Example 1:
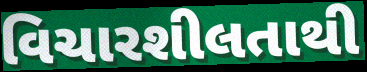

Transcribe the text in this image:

વિચારશીલતાથી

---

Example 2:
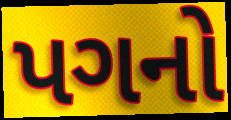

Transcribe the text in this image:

પગનો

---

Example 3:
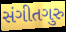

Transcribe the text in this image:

સંગીતગુરુ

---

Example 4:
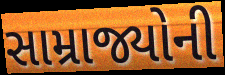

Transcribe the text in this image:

સામ્રાજ્યોની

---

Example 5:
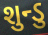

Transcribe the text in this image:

શુન્ડુ